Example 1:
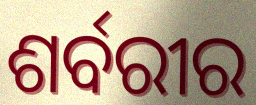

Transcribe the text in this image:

ଶର୍ବରୀର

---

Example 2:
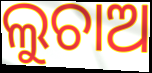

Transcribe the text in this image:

ଲୁଚାଅ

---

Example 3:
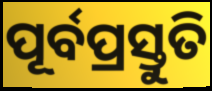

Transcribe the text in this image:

ପୂର୍ବପ୍ରସ୍ତୁତି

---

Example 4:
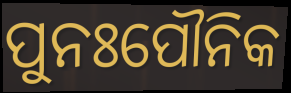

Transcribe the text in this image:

ପୁନଃପୌନିକ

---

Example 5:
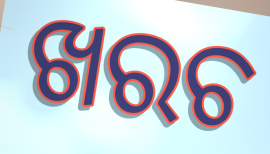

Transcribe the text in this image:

ଖରଚ